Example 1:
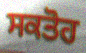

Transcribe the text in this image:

ਸਕਤੋਹ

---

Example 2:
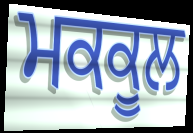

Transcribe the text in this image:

ਮਕਕੂਲ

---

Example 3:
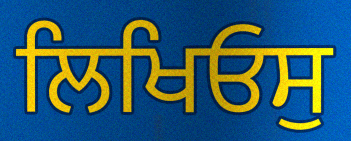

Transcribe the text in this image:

ਲਿਖਿਓਸੁ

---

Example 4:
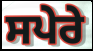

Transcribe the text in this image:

ਸਪੇਰੇ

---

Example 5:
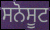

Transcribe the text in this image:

ਸਨੋਸੂਟ